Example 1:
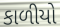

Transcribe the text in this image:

કાળીયો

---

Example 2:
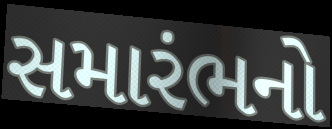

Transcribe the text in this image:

સમારંભનો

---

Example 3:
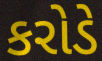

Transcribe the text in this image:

કરોડે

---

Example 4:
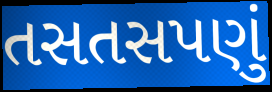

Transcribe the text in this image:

તસતસપણું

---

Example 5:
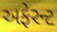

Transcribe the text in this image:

અફેરન્ટ